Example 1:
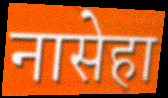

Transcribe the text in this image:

नासेहा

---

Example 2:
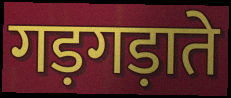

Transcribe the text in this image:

गड़गड़ाते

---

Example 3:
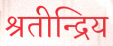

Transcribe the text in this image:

श्रतीन्द्रिय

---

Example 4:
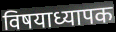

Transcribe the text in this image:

विषयाध्यापक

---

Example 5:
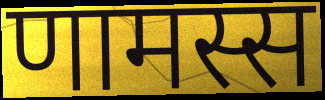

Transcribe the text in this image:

णामस्स